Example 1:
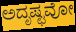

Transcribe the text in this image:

ಅದೃಷ್ಟವೋ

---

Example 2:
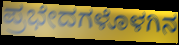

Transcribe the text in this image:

ಪ್ರಭೇದಗಳೊಳಗಿನ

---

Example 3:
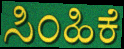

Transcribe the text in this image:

ಸಿಂಹಿಕೆ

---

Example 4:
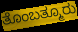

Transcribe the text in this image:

ತೊಂಬತ್ಮೂರು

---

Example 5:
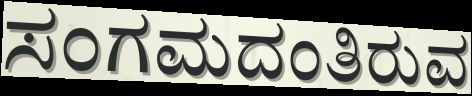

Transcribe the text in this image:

ಸಂಗಮದಂತಿರುವ